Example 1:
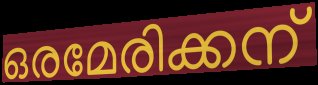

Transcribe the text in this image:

ഒരമേരിക്കന്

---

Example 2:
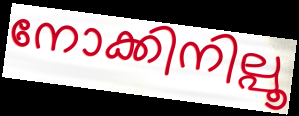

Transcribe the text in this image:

നോക്കിനില്പൂ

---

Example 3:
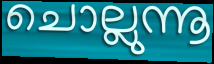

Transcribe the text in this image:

ചൊല്ലുന്നൂ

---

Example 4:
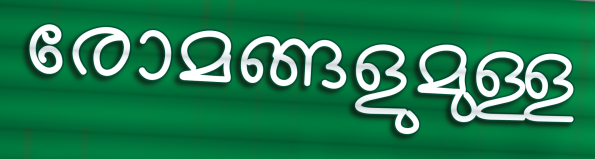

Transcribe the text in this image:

രോമങ്ങളുമുള്ള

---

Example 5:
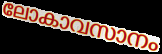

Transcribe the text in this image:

ലോകാവസാനം